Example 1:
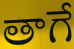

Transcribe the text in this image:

తాగే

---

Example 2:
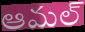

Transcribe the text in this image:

ఆమల్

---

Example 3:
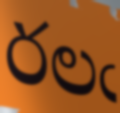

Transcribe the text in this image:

రలఁ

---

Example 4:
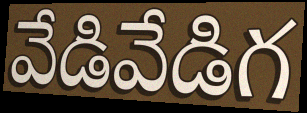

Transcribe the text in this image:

వేడివేడిగ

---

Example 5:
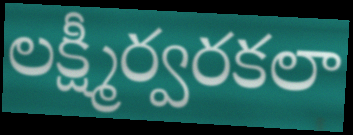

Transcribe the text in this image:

లక్ష్మీర్వరకలా